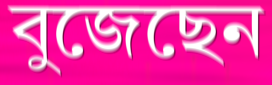
বুজেছেন